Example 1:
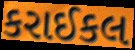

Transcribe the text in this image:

કરાઈકલ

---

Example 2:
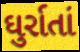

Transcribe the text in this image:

ઘુર્રાતાં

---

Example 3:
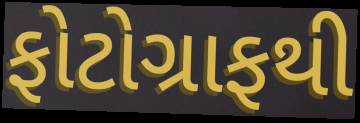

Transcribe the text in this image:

ફોટોગ્રાફથી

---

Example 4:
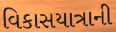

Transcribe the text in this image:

વિકાસયાત્રાની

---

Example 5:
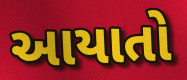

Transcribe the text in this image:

આયાતો